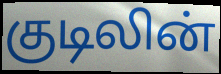
குடிலின்